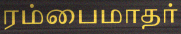
ரம்பைமாதர்